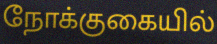
நோக்குகையில்